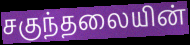
சகுந்தலையின்